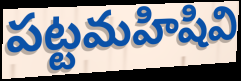
పట్టమహిషివి